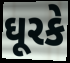
ઘૂરકે